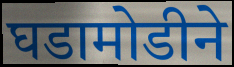
घडामोडीने